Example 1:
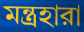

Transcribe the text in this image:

মন্ত্রহারা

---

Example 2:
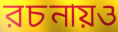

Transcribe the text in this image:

রচনায়ও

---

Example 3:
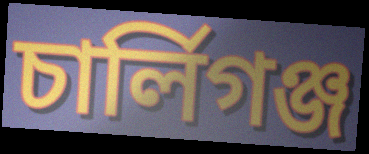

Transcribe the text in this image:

চার্লিগঞ্জ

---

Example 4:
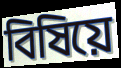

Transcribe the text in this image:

বিষিয়ে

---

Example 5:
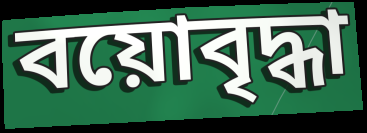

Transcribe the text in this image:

বয়োবৃদ্ধা